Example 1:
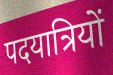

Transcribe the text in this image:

पदयात्रियों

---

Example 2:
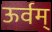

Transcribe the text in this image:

ऊर्वम्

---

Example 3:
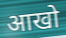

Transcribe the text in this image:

आखो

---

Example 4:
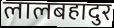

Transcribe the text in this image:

लालबहादुर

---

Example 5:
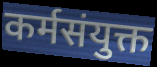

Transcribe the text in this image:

कर्मसंयुक्त